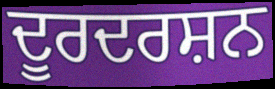
ਦੂਰਦਰਸ਼ਨ